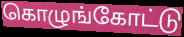
கொழுங்கோட்டு